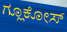
ಗ್ಲೂಕೋಸ್